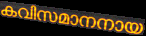
കവിസമാനനായ